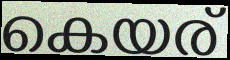
കെയര്